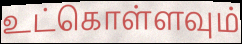
உட்கொள்ளவும்